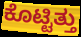
ಕೊಟ್ಟಿತ್ತು